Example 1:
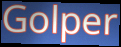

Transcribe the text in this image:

Golper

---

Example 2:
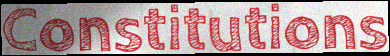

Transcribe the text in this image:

Constitutions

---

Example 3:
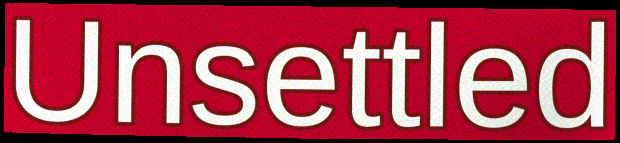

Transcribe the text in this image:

Unsettled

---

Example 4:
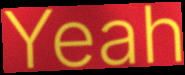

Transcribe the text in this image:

Yeah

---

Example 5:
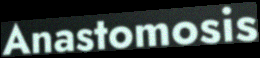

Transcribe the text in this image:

Anastomosis